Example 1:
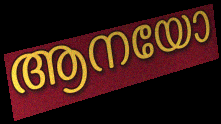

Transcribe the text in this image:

ആനയോ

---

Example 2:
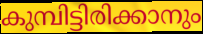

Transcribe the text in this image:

കുമ്പിട്ടിരിക്കാനും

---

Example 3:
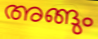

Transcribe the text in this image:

അങ്ങും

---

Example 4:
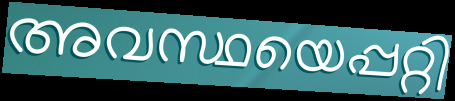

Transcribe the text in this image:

അവസ്ഥയെപ്പറ്റി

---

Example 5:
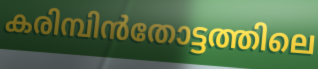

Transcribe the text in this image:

കരിമ്പിൻതോട്ടത്തിലെ